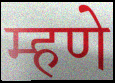
म्हणे